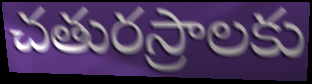
చతురస్రాలకు